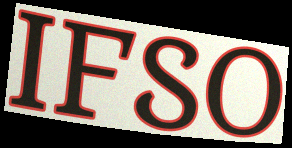
IFSO